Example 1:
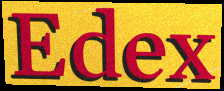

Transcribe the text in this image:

Edex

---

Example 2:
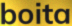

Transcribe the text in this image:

boita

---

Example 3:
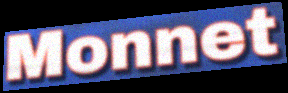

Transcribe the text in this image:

Monnet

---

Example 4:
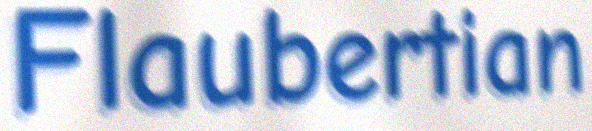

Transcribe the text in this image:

Flaubertian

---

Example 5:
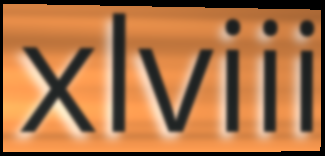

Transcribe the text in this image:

xlviii